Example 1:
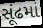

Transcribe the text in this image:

સૂંઢમાં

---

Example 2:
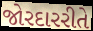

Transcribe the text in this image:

જોરદારરીતે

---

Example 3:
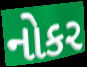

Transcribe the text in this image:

નોકર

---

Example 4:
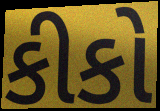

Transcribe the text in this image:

કીકો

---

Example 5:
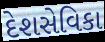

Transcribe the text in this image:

દેશસેવિકા